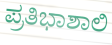
ಪ್ರತಿಭಾಶಾಲಿ